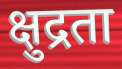
क्षुद्रता